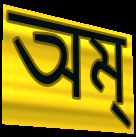
অম্